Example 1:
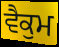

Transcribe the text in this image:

ਵੈਕੁਮ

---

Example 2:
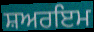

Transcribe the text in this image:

ਸ਼ਅਰਇਮ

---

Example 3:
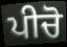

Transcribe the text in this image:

ਪੀਚੋ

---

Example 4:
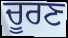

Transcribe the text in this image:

ਚੂਰਣ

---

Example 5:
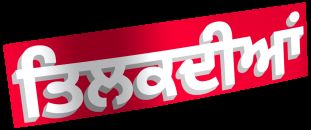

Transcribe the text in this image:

ਤਿਲਕਦੀਆਂ